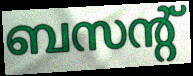
ബസന്റ്